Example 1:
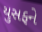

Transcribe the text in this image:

યુસફ્ને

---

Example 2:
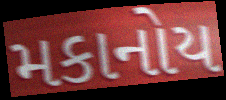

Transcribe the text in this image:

મકાનોય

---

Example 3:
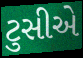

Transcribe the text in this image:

ટુસીએ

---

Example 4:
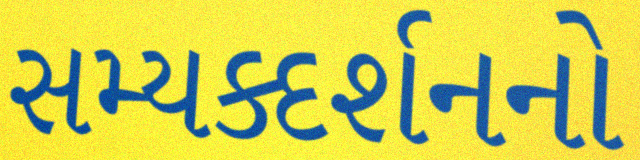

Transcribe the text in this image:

સમ્યક્દર્શનનો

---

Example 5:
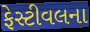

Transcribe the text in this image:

ફેસ્ટીવલના